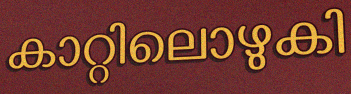
കാറ്റിലൊഴുകി